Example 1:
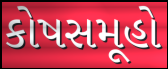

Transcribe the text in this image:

કોષસમૂહો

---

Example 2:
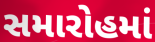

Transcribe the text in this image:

સમારોહમાં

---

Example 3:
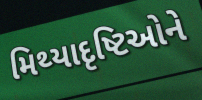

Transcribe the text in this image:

મિથ્યાદૃષ્ટિઓને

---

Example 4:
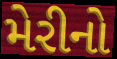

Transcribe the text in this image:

મેરીનો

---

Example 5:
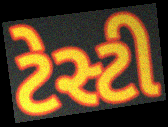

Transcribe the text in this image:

ટેસ્ટી